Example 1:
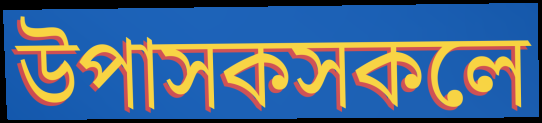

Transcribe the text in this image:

উপাসকসকলে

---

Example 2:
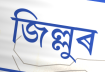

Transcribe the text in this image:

জিল্লুৰ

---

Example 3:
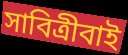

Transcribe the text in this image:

সাবিত্ৰীবাই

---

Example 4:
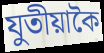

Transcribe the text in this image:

যুতীয়াকৈ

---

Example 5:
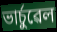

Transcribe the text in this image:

ভাৰ্চুৱেল